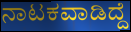
ನಾಟಕವಾಡಿದ್ದೆ